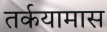
तर्कयामास